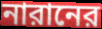
নারানের